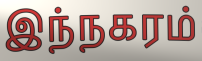
இந்நகரம்